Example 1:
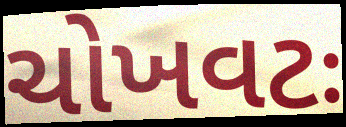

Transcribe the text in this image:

ચોખવટઃ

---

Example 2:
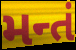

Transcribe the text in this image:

મન્તં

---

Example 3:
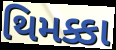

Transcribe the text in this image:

થિમક્કા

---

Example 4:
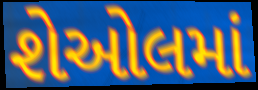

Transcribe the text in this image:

શેઓલમાં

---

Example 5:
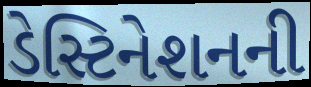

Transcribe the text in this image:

ડેસ્ટિનેશનની